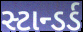
સ્ટાન્ડર્ડ